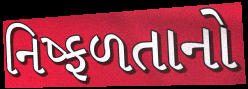
નિષ્ફળતાનો